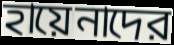
হায়েনাদের